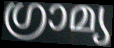
ഗ്രാമ്യ